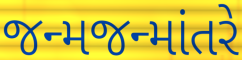
જન્મજન્માંતરે